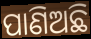
ପାଣିଅଛି